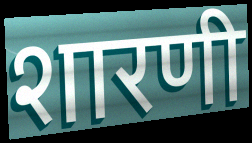
शारणी